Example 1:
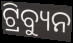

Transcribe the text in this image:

ଟ୍ରିବ୍ୟୁନ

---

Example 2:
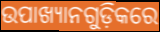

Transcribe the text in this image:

ଉପାଖ୍ୟାନଗୁଡ଼ିକରେ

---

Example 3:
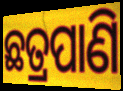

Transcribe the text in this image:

ଛତ୍ରପାଣି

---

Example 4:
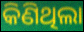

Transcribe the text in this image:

କିଣିଥିଲା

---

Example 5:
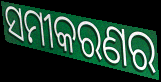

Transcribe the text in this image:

ସମୀକରଣର